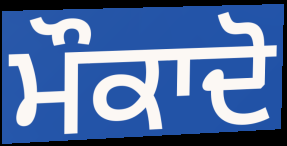
ਮੌਕਾਦੋ